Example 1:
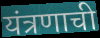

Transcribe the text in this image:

यंत्रणाची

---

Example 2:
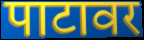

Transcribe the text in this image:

पाटावर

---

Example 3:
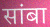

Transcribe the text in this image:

सांबा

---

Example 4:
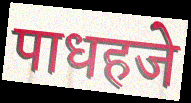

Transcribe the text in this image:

पाधहजे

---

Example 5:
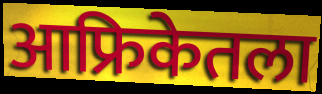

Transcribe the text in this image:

आफ्रिकेतला